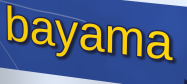
bayama